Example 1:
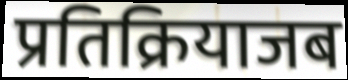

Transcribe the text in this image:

प्रतिक्रियाजब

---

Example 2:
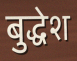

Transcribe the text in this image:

बुद्धेश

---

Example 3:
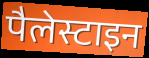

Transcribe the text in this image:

पैलेस्टाइन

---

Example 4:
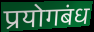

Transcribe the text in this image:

प्रयोगबंध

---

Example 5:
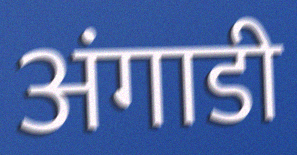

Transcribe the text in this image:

अंगाडी